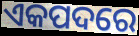
ଏକପଦରେ